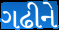
ગઢીને